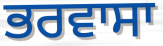
ਭਰਵਾਸਾ